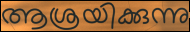
ആശ്രയിക്കുന്നു